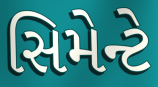
સિમેન્ટે